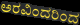
ಅರವಿಂದರಿಂದ